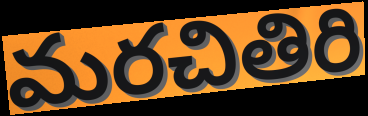
మరచితిరి